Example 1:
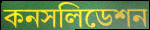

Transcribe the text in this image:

কনসলিডেশন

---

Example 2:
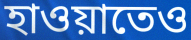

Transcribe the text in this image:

হাওয়াতেও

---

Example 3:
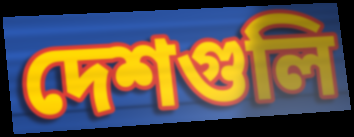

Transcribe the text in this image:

দেশগুলি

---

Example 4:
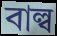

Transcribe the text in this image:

বাল্ব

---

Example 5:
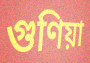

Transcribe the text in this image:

গুণিয়া